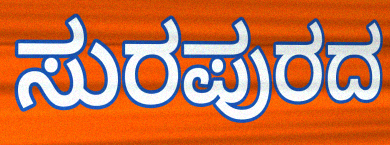
ಸುರಪುರದ